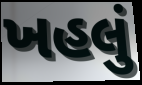
ખહલું